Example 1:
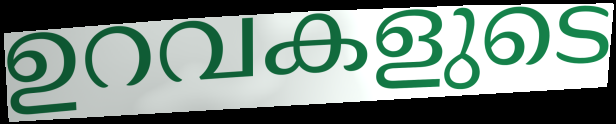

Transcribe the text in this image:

ഉറവകളുടെ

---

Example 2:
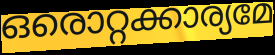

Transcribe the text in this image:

ഒരൊറ്റക്കാര്യമേ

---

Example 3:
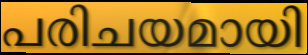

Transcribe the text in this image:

പരിചയമായി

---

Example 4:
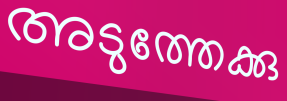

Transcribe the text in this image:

അടുത്തേക്കു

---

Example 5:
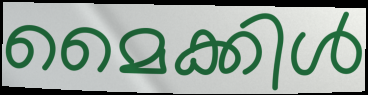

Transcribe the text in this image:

മൈക്കിൾ